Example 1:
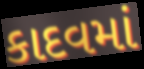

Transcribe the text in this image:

કાદવમાં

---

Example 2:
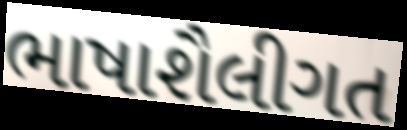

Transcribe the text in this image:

ભાષાશૈલીગત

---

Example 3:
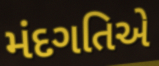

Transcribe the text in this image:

મંદગતિએ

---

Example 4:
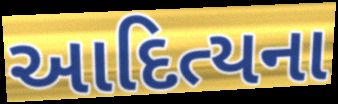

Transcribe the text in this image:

આદિત્યના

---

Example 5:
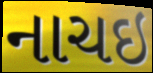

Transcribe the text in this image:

નાચઇ